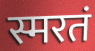
स्मरतं